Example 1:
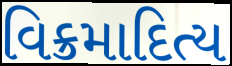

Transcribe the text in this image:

વિક્રમાદિત્‍ય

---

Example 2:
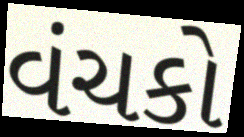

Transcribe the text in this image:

વંચકો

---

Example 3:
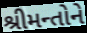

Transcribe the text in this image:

શ્રીમન્તોને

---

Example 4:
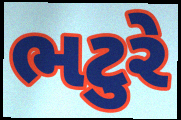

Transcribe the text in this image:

ભટુરે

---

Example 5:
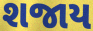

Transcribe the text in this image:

શજાય